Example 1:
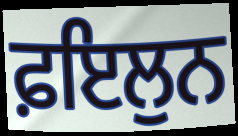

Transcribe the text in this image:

ਫ਼ਇਲੁਨ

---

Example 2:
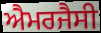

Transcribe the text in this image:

ਐਮਰਜੈਸੀ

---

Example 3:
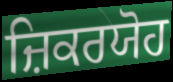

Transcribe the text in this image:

ਜ਼ਿਕਰਯੋਹ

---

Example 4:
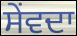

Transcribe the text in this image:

ਸੇਂਵਦਾ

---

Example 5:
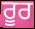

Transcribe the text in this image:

ਰੂਰ